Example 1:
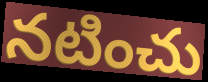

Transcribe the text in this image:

నటించు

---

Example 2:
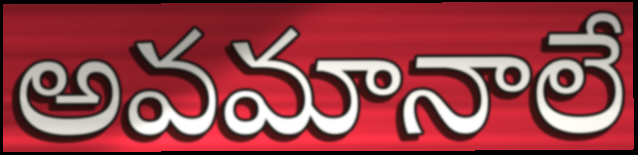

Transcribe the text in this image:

అవమానాలే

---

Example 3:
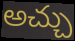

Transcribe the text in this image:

అచ్చు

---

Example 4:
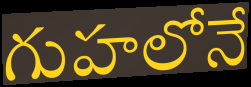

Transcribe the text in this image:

గుహలోనే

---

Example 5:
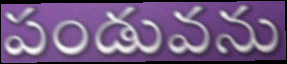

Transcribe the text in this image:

పండువను